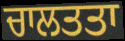
ਚਾਲਤਤਾ